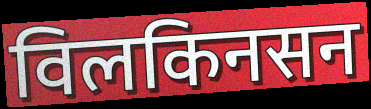
विलकिनसन